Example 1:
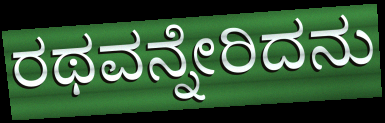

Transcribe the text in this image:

ರಥವನ್ನೇರಿದನು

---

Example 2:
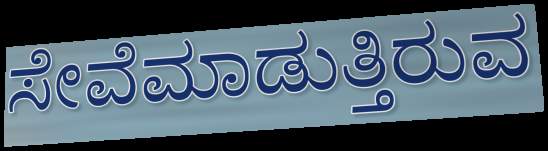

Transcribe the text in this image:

ಸೇವೆಮಾಡುತ್ತಿರುವ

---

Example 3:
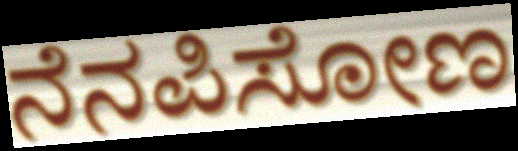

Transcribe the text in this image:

ನೆನಪಿಸೋಣ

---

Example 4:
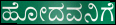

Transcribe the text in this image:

ಹೋದವನಿಗೆ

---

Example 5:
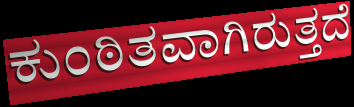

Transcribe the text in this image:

ಕುಂಠಿತವಾಗಿರುತ್ತದೆ